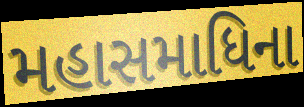
મહાસમાધિના